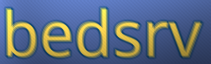
bedsrv